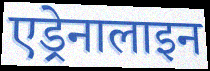
एड्रेनालाइन